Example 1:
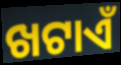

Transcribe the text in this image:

ଖଟାଏଁ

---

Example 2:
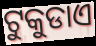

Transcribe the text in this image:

ଟୁକୁଡାଏ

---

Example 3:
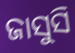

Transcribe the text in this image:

ଜାସୁସି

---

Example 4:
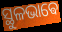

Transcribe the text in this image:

ସ୍ଥୁଳଭାଵେ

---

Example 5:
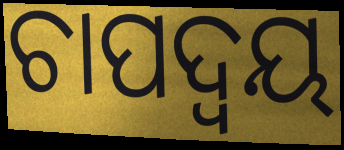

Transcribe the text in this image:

ଚାପଦ୍ଵୟ